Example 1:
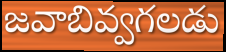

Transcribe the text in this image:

జవాబివ్వగలడు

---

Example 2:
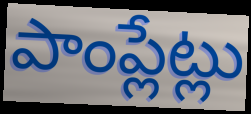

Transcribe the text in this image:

పాంప్లేట్లు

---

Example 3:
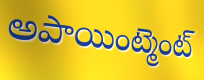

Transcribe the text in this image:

అపాయింట్మెంట్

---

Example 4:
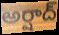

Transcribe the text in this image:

అర్షాద్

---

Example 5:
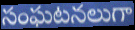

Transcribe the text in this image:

సంఘటనలుగా